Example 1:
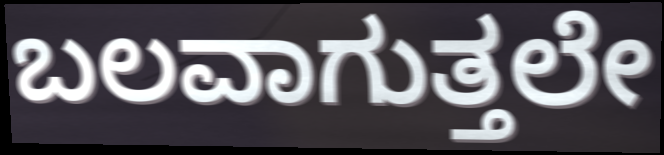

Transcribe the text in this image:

ಬಲವಾಗುತ್ತಲೇ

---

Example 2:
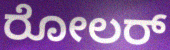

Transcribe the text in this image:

ರೋಲರ್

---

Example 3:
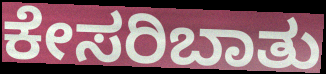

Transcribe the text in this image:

ಕೇಸರಿಬಾತು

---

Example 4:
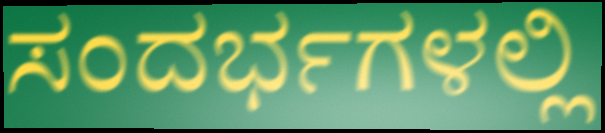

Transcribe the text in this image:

ಸಂದರ್ಭಗಳಲ್ಲಿ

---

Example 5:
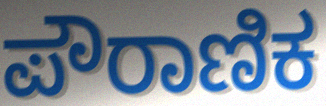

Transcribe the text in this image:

ಪೌರಾಣಿಕ